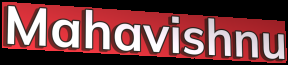
Mahavishnu